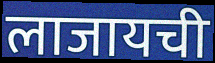
लाजायची